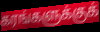
கரங்களுக்குக்